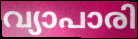
വ്യാപാരി